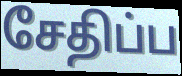
சேதிப்ப